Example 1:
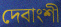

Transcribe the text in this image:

দেবাংশী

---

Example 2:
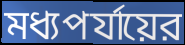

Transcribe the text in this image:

মধ্যপর্যায়ের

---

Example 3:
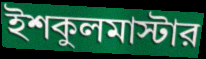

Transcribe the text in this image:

ইশকুলমাস্টার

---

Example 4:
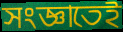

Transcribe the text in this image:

সংজ্ঞাতেই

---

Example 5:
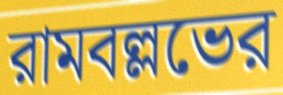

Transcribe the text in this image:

রামবল্লভের